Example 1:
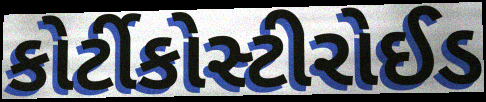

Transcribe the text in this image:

કોર્ટીકોસ્ટીરોઈડ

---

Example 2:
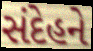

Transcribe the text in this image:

સંદેહને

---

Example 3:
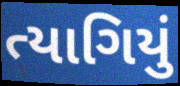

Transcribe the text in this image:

ત્યાગિયું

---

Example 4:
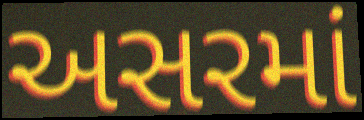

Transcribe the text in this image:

અસરમાં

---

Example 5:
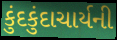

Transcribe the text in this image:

કુંદકુંદાચાર્યની